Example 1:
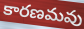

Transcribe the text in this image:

కారణమవు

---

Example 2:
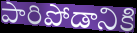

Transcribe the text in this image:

పారిపోడానికి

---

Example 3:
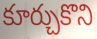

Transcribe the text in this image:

కూర్చుకొని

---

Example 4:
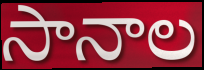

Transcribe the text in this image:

సానాల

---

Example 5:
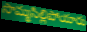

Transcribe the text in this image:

సొమ్మసిల్లిపోయారు